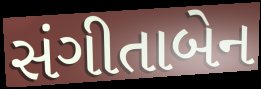
સંગીતાબેન